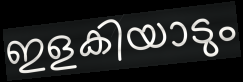
ഇളകിയാടും